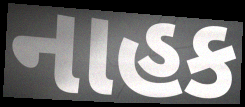
નાહક